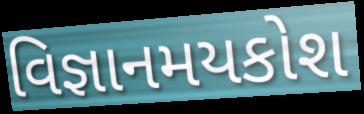
વિજ્ઞાનમયકોશ